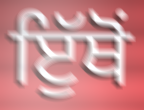
ਇੁੱਥੋਂ